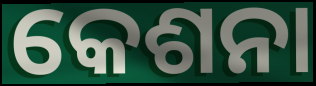
କେଶନା